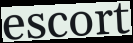
escort